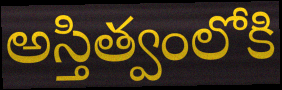
అస్తిత్వంలోకి